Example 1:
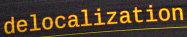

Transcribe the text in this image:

delocalization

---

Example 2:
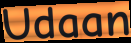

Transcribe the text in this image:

Udaan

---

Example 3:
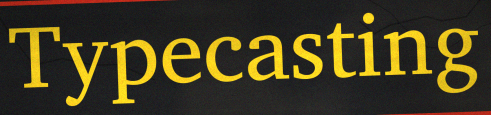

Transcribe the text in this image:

Typecasting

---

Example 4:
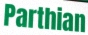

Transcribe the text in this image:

Parthian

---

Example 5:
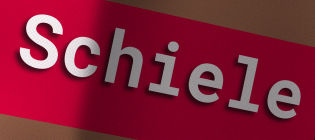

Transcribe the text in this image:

Schiele